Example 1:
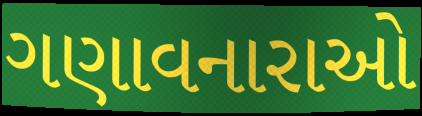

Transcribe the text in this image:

ગણાવનારાઓ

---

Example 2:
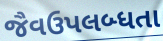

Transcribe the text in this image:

જૈવઉપલબ્ધતા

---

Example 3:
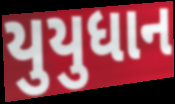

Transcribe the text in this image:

યુયુધાન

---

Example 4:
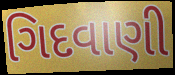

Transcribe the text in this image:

ગિદવાણી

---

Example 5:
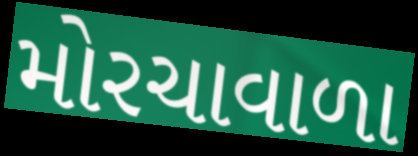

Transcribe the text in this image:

મોરચાવાળા